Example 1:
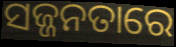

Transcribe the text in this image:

ସଜ୍ଜନତାରେ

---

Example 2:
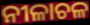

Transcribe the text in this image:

ନୀଳାଚଳ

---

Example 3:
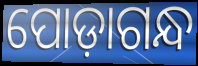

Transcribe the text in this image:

ପୋଡ଼ାଗନ୍ଧ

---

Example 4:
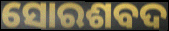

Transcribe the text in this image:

ସୋରଶବଦ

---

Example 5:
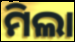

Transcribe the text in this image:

ମିଲା